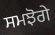
ਸਮਝੋਗੇ